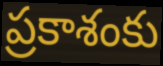
ప్రకాశంకు